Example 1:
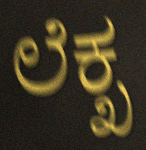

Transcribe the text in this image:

ಲೆಕ್ಖ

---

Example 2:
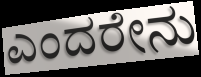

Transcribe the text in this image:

ಎಂದರೇನು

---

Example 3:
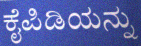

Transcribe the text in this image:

ಕೈಪಿಡಿಯನ್ನು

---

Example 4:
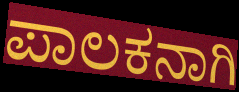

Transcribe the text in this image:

ಪಾಲಕನಾಗಿ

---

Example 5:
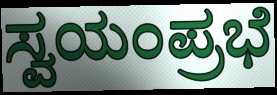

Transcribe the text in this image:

ಸ್ವಯಂಪ್ರಭೆ